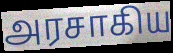
அரசாகிய